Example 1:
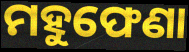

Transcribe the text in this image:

ମହୁଫେଣା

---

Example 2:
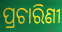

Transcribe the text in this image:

ପ୍ରଚାରିଣୀ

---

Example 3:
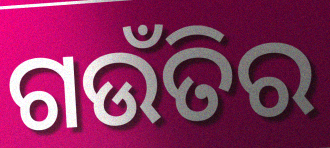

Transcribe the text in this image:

ଗଉଁତିର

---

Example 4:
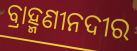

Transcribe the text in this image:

ବ୍ରାହ୍ମଣୀନଦୀର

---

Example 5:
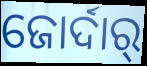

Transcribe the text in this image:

ଜୋର୍ଦାର୍